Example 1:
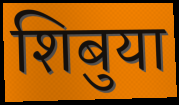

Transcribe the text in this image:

शिबुया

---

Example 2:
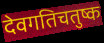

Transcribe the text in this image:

देवगतिचतुष्क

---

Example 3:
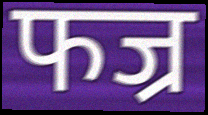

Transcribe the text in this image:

फज्र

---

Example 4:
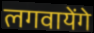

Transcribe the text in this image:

लगवायेंगे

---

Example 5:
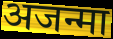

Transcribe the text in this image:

अजन्‍मा